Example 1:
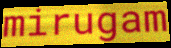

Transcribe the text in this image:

mirugam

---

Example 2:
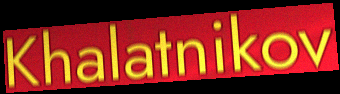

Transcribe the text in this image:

Khalatnikov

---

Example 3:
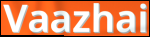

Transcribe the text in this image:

Vaazhai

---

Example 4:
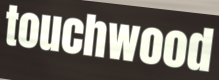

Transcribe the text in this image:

touchwood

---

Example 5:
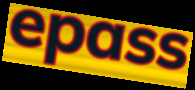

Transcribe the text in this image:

epass